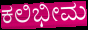
ಕಲಿಭೀಮ